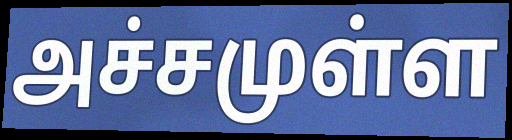
அச்சமுள்ள